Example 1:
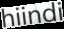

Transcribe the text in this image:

hiindi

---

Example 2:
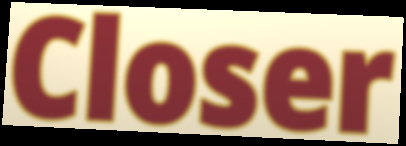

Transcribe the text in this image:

Closer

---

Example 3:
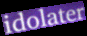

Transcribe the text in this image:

idolater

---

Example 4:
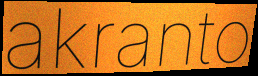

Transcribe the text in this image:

akranto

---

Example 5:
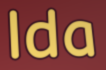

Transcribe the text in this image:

lda